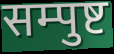
सम्पुष्ट